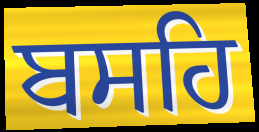
ਬਸਹਿ